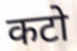
कटो